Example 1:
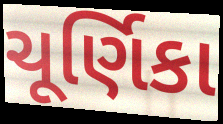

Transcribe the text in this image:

ચૂર્ણિકા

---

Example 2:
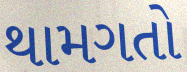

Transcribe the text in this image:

થામગતો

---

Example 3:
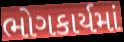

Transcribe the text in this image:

ભોગકાર્યમાં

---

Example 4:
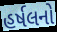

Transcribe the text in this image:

હર્ષલનો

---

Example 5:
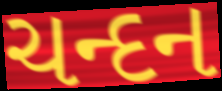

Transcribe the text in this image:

ચન્દન